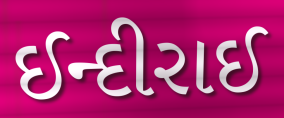
ઈન્દીરાઈ